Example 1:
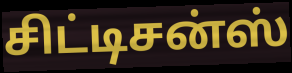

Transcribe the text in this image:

சிட்டிசன்ஸ்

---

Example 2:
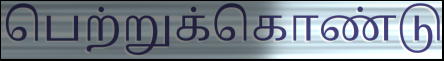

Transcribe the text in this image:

பெற்றுக்கொண்டு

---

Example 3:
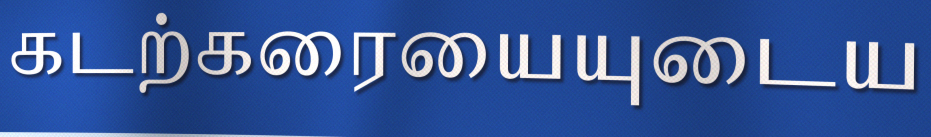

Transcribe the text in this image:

கடற்கரையையுடைய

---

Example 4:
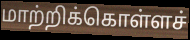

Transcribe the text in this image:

மாற்றிக்கொள்ளச்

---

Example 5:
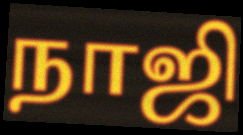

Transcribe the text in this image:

நாஜி